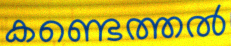
കണ്ടെത്തൽ